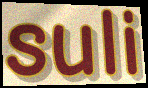
suli